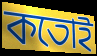
কতোই